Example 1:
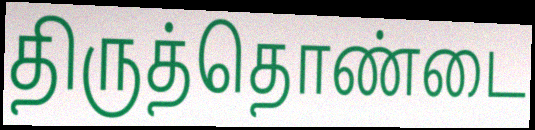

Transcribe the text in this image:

திருத்தொண்டை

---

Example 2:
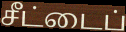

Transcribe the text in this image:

சீட்டைப்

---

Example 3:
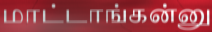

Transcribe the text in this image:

மாட்டாங்கன்னு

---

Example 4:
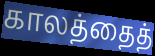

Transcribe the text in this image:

காலத்தைத்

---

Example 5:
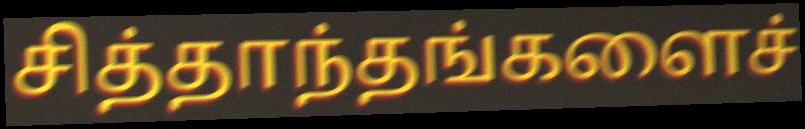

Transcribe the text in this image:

சித்தாந்தங்களைச்